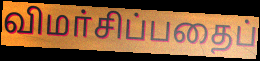
விமர்சிப்பதைப்